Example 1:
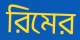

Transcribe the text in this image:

রিমের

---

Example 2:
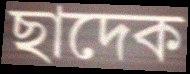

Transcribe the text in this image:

ছাদেক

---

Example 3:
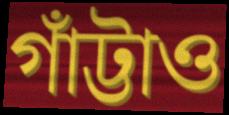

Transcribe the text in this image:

গাঁট্টাও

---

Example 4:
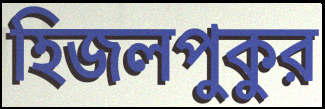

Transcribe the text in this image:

হিজলপুকুর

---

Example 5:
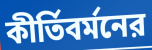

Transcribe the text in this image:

কীর্তিবর্মনের